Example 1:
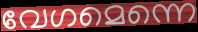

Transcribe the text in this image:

വേഗമെന്നെ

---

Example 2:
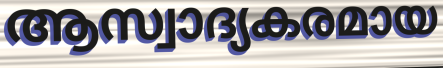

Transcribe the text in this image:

ആസ്വാദ്യകരമായ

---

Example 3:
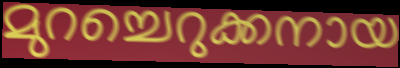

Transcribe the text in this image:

മുറച്ചെറുക്കനായ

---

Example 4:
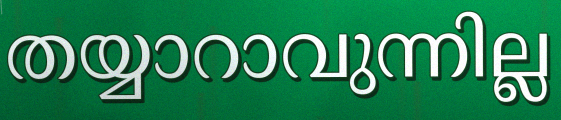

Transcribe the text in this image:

തയ്യാറാവുന്നില്ല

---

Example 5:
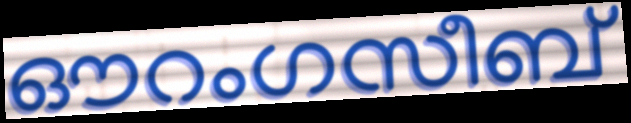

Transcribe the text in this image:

ഔറംഗസീബ്